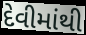
દેવીમાંથી